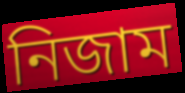
নিজাম